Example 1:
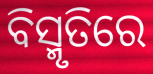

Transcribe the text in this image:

ବିସ୍ମୃତିରେ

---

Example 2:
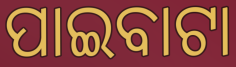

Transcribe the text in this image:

ପାଇବାଟା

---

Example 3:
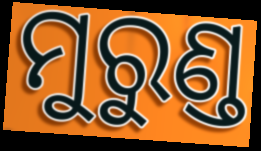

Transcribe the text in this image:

ମୁରୁଣ୍ଡ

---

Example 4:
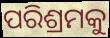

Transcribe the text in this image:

ପରିଶ୍ରମକୁ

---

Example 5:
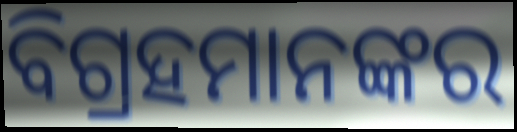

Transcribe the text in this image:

ବିଗ୍ରହମାନଙ୍କର